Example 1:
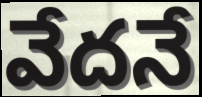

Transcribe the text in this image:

వేదనే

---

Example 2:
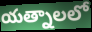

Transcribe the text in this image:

యత్నాలలో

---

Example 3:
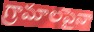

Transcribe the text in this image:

గ్రామాలపైనా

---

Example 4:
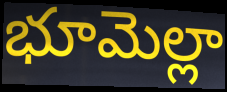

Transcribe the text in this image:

భూమెల్లా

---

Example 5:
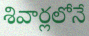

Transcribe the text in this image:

శివార్లలోనే